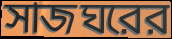
সাজঘরের